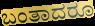
ಬಂತಾದರೂ